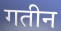
गतीन